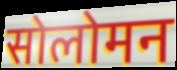
सोलोमन